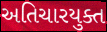
અતિચારયુક્ત